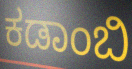
ಕಡಾಂಬಿ